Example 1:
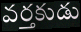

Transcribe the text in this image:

వర్తకుడు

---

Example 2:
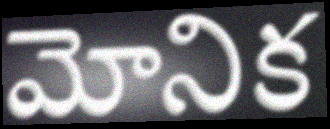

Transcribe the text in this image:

మోనిక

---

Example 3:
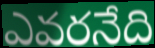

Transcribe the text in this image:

ఎవరనేది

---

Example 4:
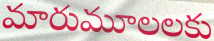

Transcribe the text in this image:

మారుమూలలకు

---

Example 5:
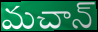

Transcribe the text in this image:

మచాన్